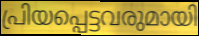
പ്രിയപ്പെട്ടവരുമായി